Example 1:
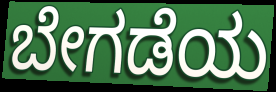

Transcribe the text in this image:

ಬೇಗಡೆಯ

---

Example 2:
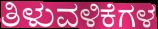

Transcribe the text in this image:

ತಿಳುವಳಿಕೆಗಳ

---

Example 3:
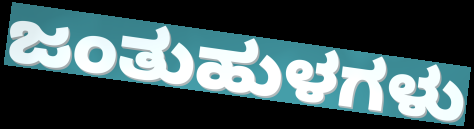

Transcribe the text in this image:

ಜಂತುಹುಳಗಳು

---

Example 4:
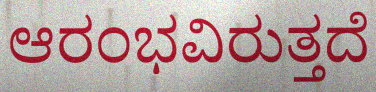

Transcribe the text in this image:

ಆರಂಭವಿರುತ್ತದೆ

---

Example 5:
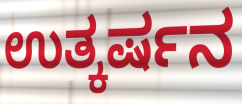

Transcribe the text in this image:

ಉತ್ಕರ್ಷನ